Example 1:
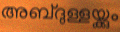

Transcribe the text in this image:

അബ്ദുള്ളയ്ക്കും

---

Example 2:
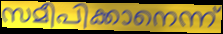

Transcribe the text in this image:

സമീപിക്കാനെന്ന്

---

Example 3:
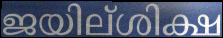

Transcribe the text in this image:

ജയില്ശിക്ഷ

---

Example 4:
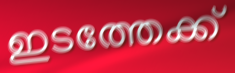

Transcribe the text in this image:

ഇടത്തേക്ക്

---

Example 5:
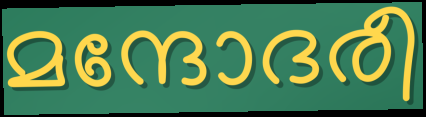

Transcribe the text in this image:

മന്ദോദരീ